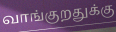
வாங்குறதுக்கு